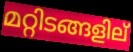
മറ്റിടങ്ങളില്